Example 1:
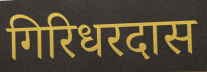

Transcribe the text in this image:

गिरिधरदास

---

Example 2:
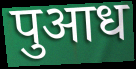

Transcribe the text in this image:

पुआध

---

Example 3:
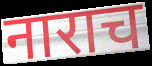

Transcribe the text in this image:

नाराच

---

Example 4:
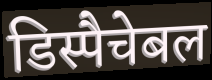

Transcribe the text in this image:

डिस्पैचेबल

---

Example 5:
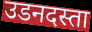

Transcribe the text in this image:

उडनदस्ता